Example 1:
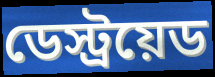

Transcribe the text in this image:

ডেস্ট্রয়েড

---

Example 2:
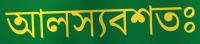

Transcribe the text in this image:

আলস্যবশতঃ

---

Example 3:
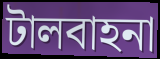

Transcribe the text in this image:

টালবাহনা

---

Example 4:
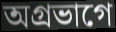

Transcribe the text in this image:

অগ্রভাগে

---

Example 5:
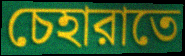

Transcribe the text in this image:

চেহারাতে